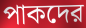
পাকদের